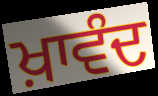
ਖ਼ਾਵੰਦ